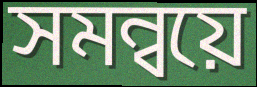
সমন্বয়ে